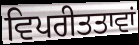
ਵਿਪਰੀਤਤਾਵਾਂ